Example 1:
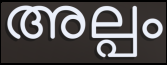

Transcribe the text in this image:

അല്പം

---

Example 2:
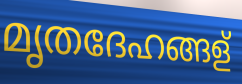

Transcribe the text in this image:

മൃതദേഹങ്ങള്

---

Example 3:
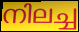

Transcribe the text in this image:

നിലച്ച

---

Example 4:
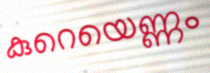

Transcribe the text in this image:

കുറെയെണ്ണം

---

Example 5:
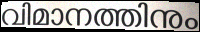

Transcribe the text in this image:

വിമാനത്തിനും